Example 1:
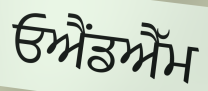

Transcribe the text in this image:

ਓਐਂਡਐੱਮ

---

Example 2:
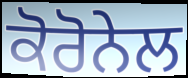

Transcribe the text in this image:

ਕੋਰੋਨੇਲ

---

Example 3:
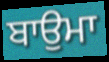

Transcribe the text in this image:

ਬਾਉਮਾ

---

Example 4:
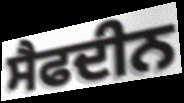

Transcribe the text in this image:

ਸੈਫਦੀਨ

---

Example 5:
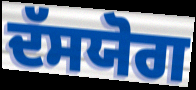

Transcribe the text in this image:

ਦੱਸਯੋਗ